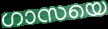
ഗാസയെ